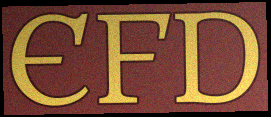
EFD